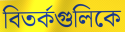
বিতর্কগুলিকে